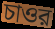
চাওর